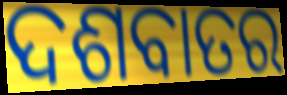
ଦଶବାତର